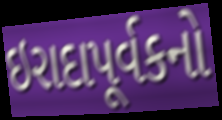
ઇરાદાપૂર્વકનો